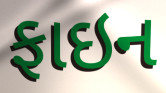
ફાઇન